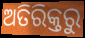
ଅତିରିକ୍ତରୁ